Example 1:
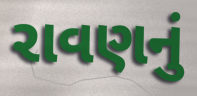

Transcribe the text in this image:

રાવણનું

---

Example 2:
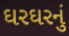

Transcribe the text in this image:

ઘરઘરનું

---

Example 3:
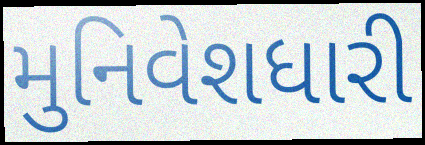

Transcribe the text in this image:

મુનિવેશધારી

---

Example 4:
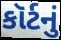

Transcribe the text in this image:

કૉર્ટનું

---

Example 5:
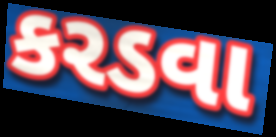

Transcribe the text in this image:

કરડવા